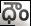
ధౌం